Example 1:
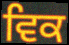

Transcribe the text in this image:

ਵਿਕ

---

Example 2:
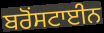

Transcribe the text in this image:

ਬਰੋਂਸਟਾਈਨ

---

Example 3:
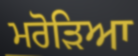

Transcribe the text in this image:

ਮਰੋੜਿਆ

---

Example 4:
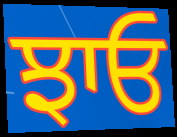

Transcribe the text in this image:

ਝਾਓ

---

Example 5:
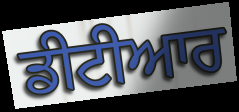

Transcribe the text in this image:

ਡੀਟੀਆਰ